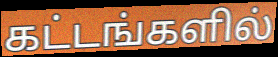
கட்டங்களில்